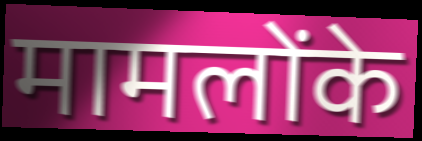
मामलोंके